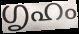
ഗൃഹം